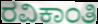
ರವಿಕಾಂತಿ